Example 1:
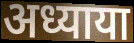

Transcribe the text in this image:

अध्याया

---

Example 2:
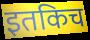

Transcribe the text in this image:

इतकिच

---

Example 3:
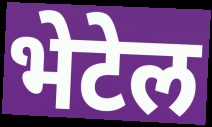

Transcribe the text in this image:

भेटेल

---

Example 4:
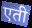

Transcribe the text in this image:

एती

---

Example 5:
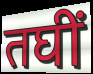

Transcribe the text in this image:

तघीं